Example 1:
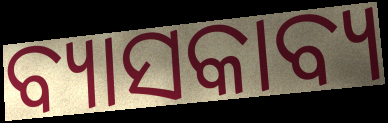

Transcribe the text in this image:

ବ୍ୟାସକାବ୍ୟ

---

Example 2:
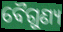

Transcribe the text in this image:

ବୈଗୁଣ୍ୟ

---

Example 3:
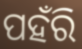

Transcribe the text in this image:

ପହଁରି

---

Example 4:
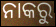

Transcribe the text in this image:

ନାକରୁ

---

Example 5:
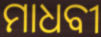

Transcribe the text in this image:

ମାଧବୀ